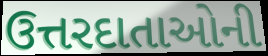
ઉત્તરદાતાઓની